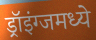
ड्रॉइंग्जमध्ये